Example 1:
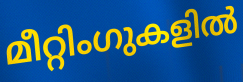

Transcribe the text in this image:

മീറ്റിംഗുകളിൽ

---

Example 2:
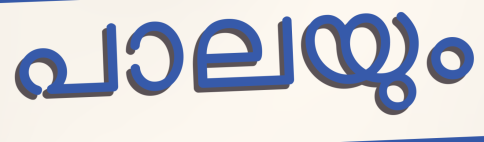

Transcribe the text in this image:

പാലയും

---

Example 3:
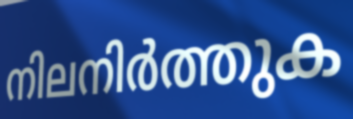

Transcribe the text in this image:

നിലനിർത്തുക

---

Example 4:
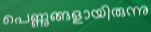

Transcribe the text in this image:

പെണ്ണുങ്ങളായിരുന്നു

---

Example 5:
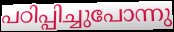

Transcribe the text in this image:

പഠിപ്പിച്ചുപോന്നു